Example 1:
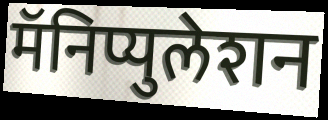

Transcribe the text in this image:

मॅनिप्युलेशन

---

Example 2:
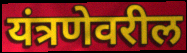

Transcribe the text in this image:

यंत्रणेवरील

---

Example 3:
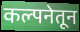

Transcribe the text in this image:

कल्पनेतून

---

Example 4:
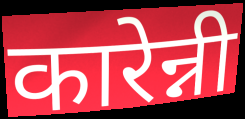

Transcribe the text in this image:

कारेन्नी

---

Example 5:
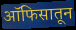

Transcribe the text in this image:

ऑफिसातून